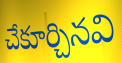
చేకూర్చినవి